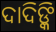
ଦାଦିଙ୍କି